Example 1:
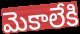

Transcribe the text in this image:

మెకాలేకి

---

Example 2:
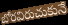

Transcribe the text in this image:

బోరవిరుచుకునే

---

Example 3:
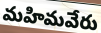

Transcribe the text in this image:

మహిమవేరు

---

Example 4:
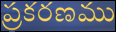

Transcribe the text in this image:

ప్రకరణము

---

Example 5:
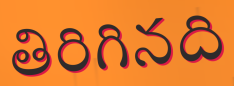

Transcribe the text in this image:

తిరిగినది